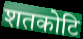
शतकोटि